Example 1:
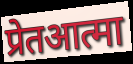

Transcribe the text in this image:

प्रेतआत्मा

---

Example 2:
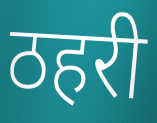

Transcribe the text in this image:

ठहरी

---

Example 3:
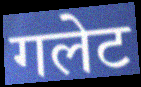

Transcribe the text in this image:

गलेट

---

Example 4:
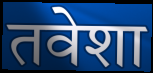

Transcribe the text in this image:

तवेशा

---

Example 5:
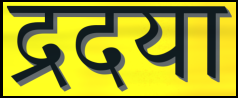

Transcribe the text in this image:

द्रदया